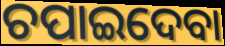
ଚପାଇଦେବା